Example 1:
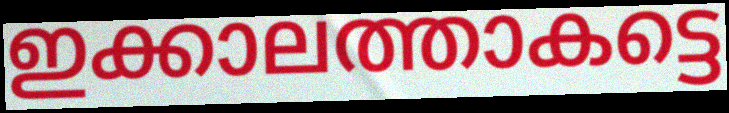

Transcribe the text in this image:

ഇക്കാലത്താകട്ടെ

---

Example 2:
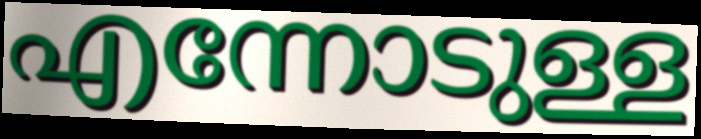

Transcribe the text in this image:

എന്നോടുള്ള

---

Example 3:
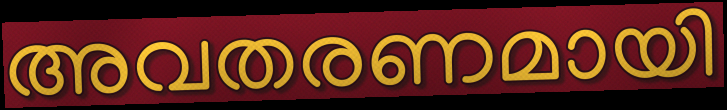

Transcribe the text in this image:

അവതരണമായി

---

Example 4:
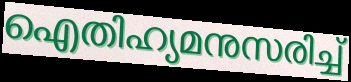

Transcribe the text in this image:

ഐതിഹ്യമനുസരിച്ച്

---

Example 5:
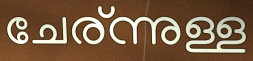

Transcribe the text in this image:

ചേര്ന്നുള്ള